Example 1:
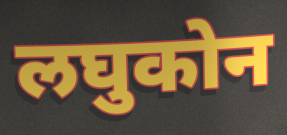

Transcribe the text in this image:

लघुकोन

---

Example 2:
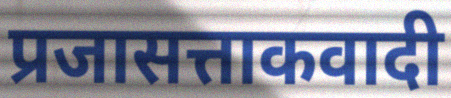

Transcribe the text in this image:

प्रजासत्ताकवादी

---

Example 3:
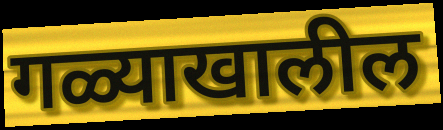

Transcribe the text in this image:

गळ्याखालील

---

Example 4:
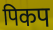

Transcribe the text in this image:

पिकप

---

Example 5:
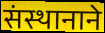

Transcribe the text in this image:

संस्थानाने